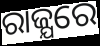
ରାଜ୍ଯରେ